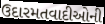
ઉદારમતવાદીઓની